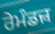
ਰੇਮੰਡਜ਼